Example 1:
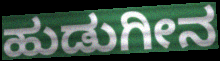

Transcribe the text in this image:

ಹುಡುಗೀನ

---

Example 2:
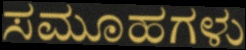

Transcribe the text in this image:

ಸಮೂಹಗಳು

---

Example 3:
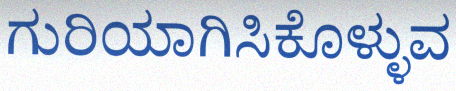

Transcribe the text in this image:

ಗುರಿಯಾಗಿಸಿಕೊಳ್ಳುವ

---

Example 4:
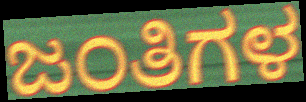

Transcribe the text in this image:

ಜಂತಿಗಳ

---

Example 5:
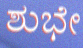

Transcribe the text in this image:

ಶುಭೇ